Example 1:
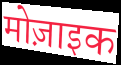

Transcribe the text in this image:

मोज़ाइक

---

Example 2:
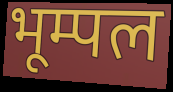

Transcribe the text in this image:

भूम्पल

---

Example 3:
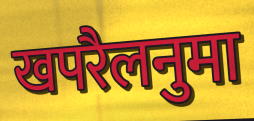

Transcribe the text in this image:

खपरैलनुमा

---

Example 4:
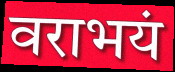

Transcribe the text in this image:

वराभयं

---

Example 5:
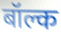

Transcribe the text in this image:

बॉल्क